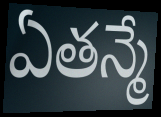
ఏతన్మే